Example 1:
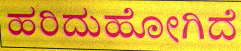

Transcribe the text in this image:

ಹರಿದುಹೋಗಿದೆ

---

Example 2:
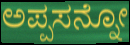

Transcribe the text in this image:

ಅಪ್ಪಸನ್ನೋ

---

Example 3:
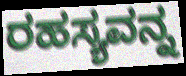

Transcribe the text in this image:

ರಹಸ್ಯವನ್ನ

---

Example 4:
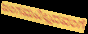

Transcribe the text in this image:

ಜಂಗಮವಿಲ್ಲದವಂಗೆ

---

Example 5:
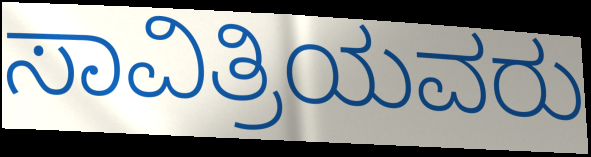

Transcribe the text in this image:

ಸಾವಿತ್ರಿಯವರು